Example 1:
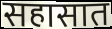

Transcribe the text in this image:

सहासात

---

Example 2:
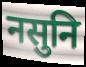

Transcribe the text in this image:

नसुनि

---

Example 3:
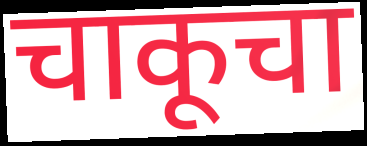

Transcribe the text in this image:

चाकूचा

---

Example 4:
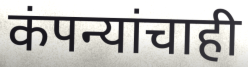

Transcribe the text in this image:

कंपन्यांचाही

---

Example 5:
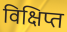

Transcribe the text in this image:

विक्षिप्त